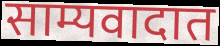
साम्यवादात